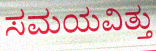
ಸಮಯವಿತ್ತು